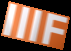
IIIF